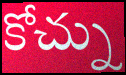
కోచ్ను